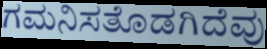
ಗಮನಿಸತೊಡಗಿದೆವು